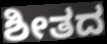
ಶೀತದ